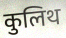
कुलिथ